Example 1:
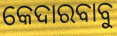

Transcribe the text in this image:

କେଦାରବାବୁ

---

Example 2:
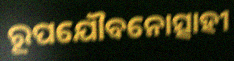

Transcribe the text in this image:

ରୂପଯୌବନୋତ୍ସାହୀ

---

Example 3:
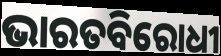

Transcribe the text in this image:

ଭାରତବିରୋଧୀ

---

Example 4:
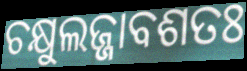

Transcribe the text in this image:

ଚକ୍ଷୁଲଜ୍ଜାବଶତଃ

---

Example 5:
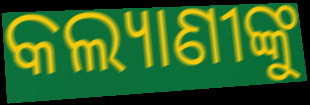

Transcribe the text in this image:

କଲ୍ୟାଣୀଙ୍କୁ